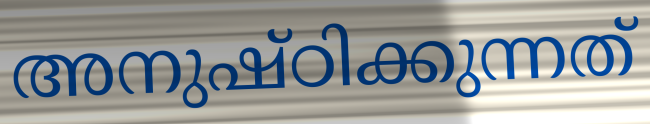
അനുഷ്ഠിക്കുന്നത്